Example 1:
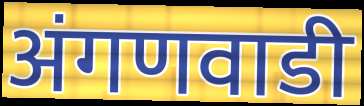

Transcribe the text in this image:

अंगणवाडी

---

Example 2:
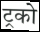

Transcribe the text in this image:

ट्रको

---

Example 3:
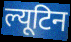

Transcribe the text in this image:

ल्यूटिन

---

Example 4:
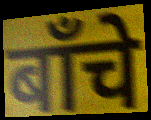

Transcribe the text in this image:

बाँचे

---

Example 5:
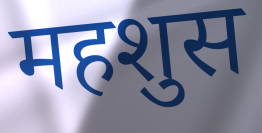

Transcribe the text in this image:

महशुस